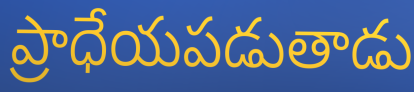
ప్రాధేయపడుతాడు